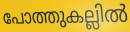
പോത്തുകല്ലിൽ